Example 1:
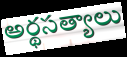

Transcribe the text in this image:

అర్థసత్యాలు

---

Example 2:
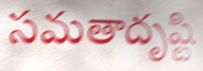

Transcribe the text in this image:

సమతాదృష్టి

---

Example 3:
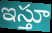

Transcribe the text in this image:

ఇస్తూ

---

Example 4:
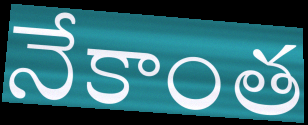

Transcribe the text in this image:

నేకాంత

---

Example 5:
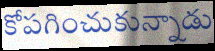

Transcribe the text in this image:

కోపగించుకున్నాడు